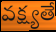
వక్ష్యతే